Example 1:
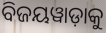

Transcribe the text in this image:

ବିଜୟୱାଡ଼ାକୁ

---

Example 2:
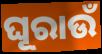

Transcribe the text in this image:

ଘୂରାଉଁ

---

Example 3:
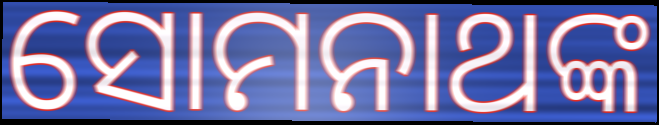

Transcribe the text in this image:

ସୋମନାଥଙ୍କ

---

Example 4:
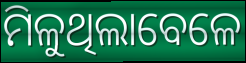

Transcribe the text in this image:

ମିଳୁଥିଲାବେଳେ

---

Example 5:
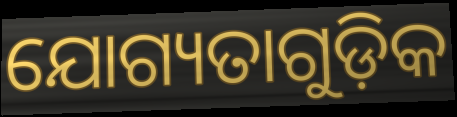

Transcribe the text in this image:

ଯୋଗ୍ୟତାଗୁଡ଼ିକ